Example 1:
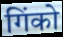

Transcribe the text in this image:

गिंको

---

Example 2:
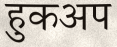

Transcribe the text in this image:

हुकअप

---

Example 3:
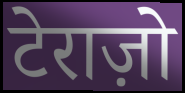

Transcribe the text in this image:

टेराज़ो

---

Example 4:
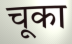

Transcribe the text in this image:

चूका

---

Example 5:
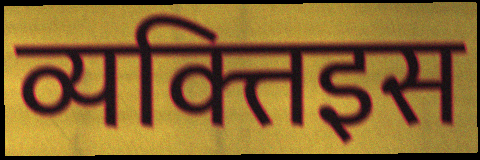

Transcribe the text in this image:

व्यक्तिइस